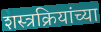
शस्त्रक्रियांच्या